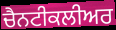
ਚੈਨਟੀਕਲੀਅਰ